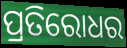
ପ୍ରତିରୋଧର